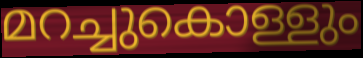
മറച്ചുകൊള്ളും